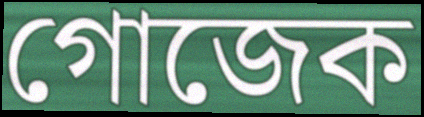
গোজেক